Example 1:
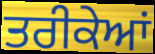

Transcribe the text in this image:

ਤਰੀਕੇਆਂ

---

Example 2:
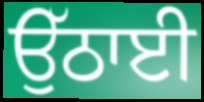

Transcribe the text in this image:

ਉੱਠਾਈ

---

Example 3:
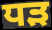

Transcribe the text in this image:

ਧੜ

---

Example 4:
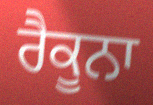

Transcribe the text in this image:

ਰੈਕੂਨਾ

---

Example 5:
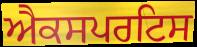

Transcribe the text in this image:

ਐਕਸਪਰਟਿਸ